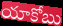
యాకోబు